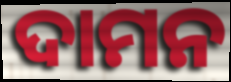
ଦାମନ